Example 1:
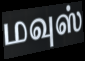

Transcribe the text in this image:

மவுஸ்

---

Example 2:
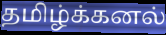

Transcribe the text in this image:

தமிழ்க்கனல்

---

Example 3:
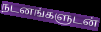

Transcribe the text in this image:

நடனங்களுடன்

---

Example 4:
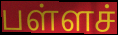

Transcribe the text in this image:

பள்ளச்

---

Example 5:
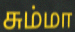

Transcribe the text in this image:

சும்மா